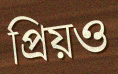
প্রিয়ও